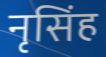
नृसिंह